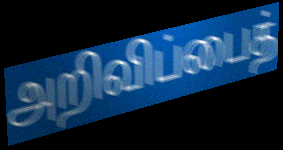
அறிவிப்பைத்